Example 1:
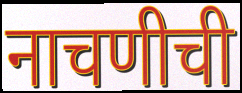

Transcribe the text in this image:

नाचणीची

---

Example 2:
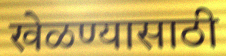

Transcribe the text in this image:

खेळण्यासाठी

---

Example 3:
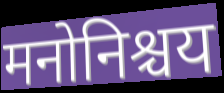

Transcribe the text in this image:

मनोनिश्चय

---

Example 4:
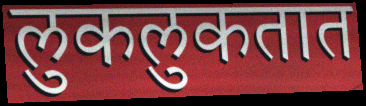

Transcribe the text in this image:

लुकलुकतात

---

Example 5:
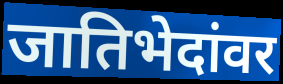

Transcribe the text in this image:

जातिभेदांवर